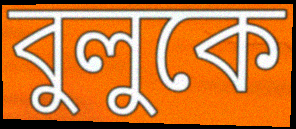
বুলুকে